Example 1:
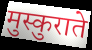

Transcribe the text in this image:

मुस्कुराते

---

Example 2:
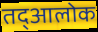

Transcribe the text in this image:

तद्आलोक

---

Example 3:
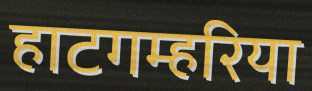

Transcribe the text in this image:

हाटगम्हरिया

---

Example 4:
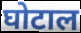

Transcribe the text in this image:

घोटाल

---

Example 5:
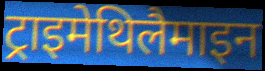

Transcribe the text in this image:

ट्राइमेथिलैमाइन